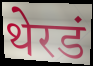
थेरडं